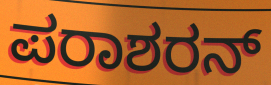
ಪರಾಶರನ್